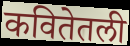
कवितेतली